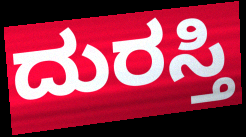
ದುರಸ್ತಿ